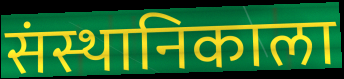
संस्थानिकाला